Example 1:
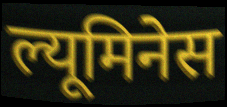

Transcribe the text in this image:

ल्यूमिनेस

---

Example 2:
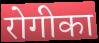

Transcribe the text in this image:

रोगीका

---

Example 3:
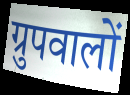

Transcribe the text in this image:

ग्रुपवालों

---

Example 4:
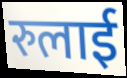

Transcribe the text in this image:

रुलाई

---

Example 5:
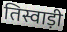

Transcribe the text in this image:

तिस्वाड़ी